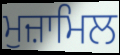
ਮੁਜ਼ਾਮਿਲ